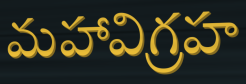
మహావిగ్రహ